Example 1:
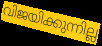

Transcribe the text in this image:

വിജയിക്കുന്നില്ല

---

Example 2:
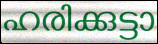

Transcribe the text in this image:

ഹരിക്കുട്ടാ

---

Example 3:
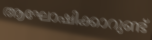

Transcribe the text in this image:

ആഘോഷിക്കാറുണ്ട്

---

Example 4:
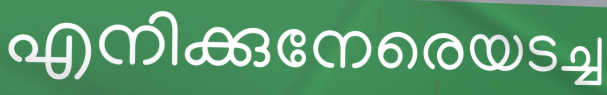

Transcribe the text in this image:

എനിക്കുനേരെയടച്ച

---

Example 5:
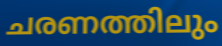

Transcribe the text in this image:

ചരണത്തിലും